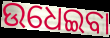
ଉଧେଇବା